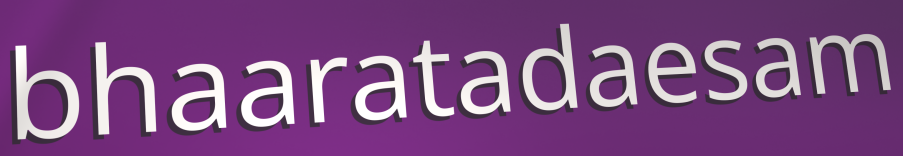
bhaaratadaesam